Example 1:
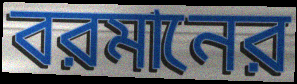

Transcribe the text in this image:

বরমানের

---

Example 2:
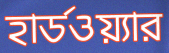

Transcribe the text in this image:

হার্ডওয়্যার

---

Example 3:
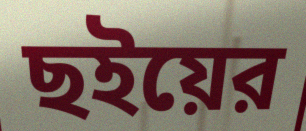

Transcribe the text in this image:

ছইয়ের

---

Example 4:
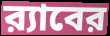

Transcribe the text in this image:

র‍্যাবের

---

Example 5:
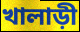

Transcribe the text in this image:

খালাড়ী